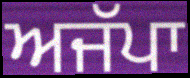
ਅਜੱਪਾ